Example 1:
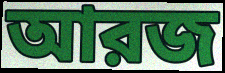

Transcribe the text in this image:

আরজ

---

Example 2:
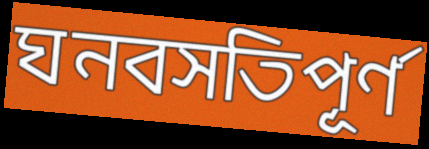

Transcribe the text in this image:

ঘনবসতিপূর্ণ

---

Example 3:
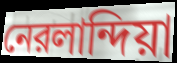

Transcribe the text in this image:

নেরলান্দিয়া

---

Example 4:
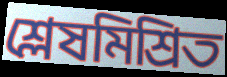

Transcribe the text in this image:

শ্লেষমিশ্রিত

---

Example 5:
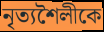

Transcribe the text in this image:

নৃত্যশৈলীকে